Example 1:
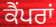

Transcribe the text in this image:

ਕੈਂਪਰਾਂ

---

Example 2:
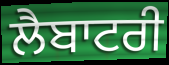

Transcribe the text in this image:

ਲੈਬਾਟਰੀ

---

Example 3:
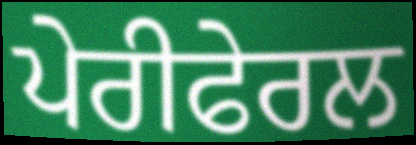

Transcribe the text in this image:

ਪੇਰੀਫੇਰਲ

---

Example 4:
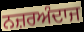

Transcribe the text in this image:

ਨਜ਼ਰਅੰਦਾਜ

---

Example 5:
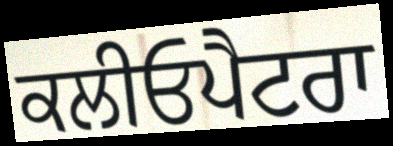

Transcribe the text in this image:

ਕਲੀਓਪੈਟਰਾ